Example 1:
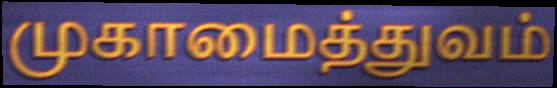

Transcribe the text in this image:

முகாமைத்துவம்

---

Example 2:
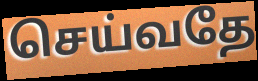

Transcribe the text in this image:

செய்வதே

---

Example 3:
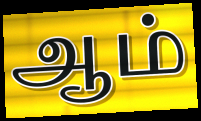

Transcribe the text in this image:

ஆம்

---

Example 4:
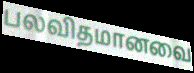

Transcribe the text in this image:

பலவிதமானவை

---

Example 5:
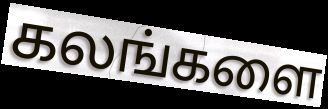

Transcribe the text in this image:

கலங்களை